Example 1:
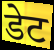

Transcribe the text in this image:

डेट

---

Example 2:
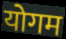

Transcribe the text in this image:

योगम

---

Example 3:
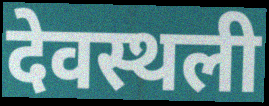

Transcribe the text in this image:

देवस्थली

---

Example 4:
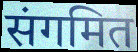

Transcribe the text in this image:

संगमित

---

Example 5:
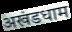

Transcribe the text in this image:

अखंडधाम